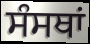
ਸੰਸਥਾਂ